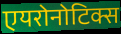
एयरोनोटिक्स